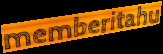
memberitahu